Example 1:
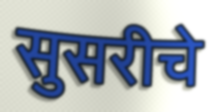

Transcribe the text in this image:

सुसरीचे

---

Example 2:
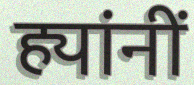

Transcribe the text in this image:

ह्यांनीं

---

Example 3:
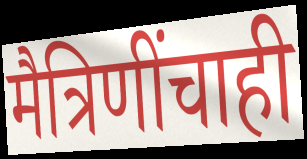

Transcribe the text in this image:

मैत्रिणींचाही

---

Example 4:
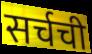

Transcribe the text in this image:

सर्चची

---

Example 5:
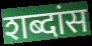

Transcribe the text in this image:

शब्दांस